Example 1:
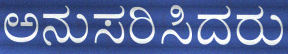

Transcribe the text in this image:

ಅನುಸರಿಸಿದರು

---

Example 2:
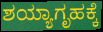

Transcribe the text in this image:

ಶಯ್ಯಾಗೃಹಕ್ಕೆ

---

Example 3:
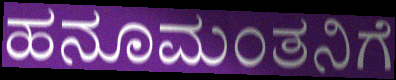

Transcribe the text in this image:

ಹನೂಮಂತನಿಗೆ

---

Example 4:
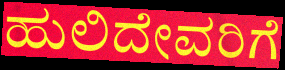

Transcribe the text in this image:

ಹುಲಿದೇವರಿಗೆ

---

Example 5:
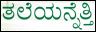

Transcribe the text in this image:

ತಲೆಯನ್ನೆತ್ತಿ